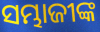
ସମ୍ଭାଜୀଙ୍କ